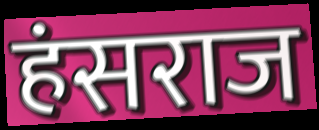
हंसराज